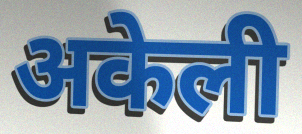
अकेली